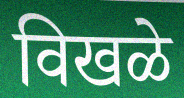
विखळे